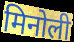
मिनोली